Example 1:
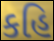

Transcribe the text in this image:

કહિ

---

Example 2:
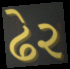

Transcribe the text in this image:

ઢેર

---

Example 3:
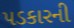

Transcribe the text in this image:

પડકારની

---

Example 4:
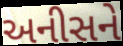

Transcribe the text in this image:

અનીસને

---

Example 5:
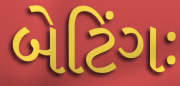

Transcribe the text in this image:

બેટિંગઃ